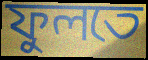
ফুলতে